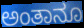
ಅಂತಾನೂ